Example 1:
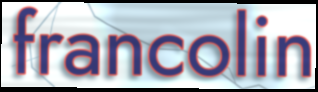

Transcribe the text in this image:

francolin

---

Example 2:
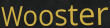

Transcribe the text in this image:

Wooster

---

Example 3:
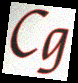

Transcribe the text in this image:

Cg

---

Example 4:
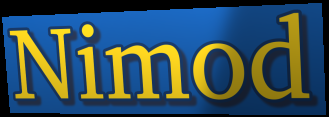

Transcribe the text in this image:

Nimod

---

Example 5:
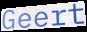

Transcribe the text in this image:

Geert